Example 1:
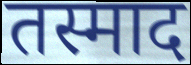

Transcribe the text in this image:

तस्माद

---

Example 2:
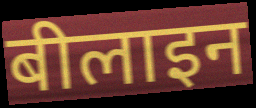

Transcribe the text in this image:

बीलाइन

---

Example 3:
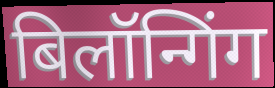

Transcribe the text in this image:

बिलॉन्गिंग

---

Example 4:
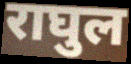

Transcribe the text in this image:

राघुल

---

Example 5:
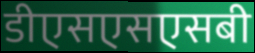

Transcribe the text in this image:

डीएसएसएसबी